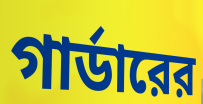
গার্ডারের